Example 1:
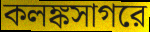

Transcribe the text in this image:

কলঙ্কসাগরে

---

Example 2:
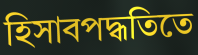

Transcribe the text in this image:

হিসাবপদ্ধতিতে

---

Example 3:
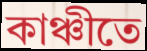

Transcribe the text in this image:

কাঞ্চীতে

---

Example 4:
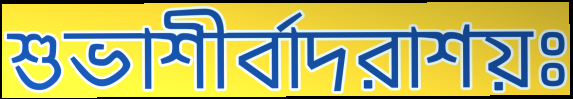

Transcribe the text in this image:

শুভাশীর্বাদরাশয়ঃ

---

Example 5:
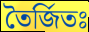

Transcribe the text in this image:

তৈর্জিতঃ